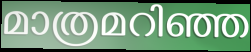
മാത്രമറിഞ്ഞ